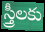
స్త్రీలకు